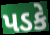
પડકે